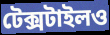
টেক্সটাইলও